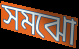
সমঝো